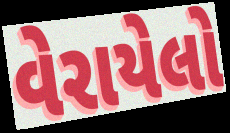
વેરાયેલો